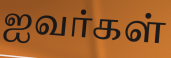
ஐவர்கள்